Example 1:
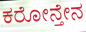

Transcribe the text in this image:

ಕರೋನ್ತೇನ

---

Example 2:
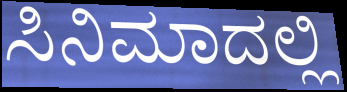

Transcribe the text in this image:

ಸಿನಿಮಾದಲ್ಲಿ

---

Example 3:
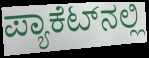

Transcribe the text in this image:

ಪ್ಯಾಕೆಟ್‍ನಲ್ಲಿ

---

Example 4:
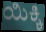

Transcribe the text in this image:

ಯಿಕ್ಕಿ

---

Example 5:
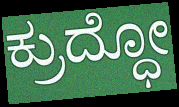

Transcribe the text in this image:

ಕ್ರುದ್ಧೋ